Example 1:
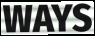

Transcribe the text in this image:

WAYS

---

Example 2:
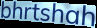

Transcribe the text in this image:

bhrtshah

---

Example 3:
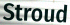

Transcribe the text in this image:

Stroud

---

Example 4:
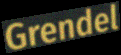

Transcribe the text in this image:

Grendel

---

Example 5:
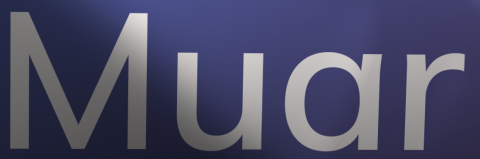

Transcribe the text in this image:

Muar